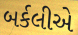
બર્કલીએ